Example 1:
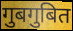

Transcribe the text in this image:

गुबगुबित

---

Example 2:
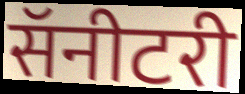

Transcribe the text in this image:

सॅनीटरी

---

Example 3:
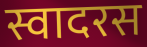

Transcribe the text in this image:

स्वादरस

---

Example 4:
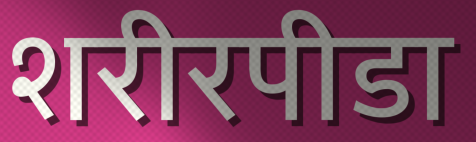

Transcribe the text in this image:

शरीरपीडा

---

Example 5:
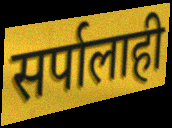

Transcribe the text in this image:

सर्पालाही